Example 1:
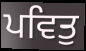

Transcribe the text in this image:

ਪਵਿਤੁ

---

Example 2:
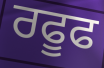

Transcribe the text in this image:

ਰਫੂਫ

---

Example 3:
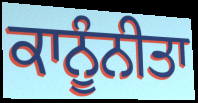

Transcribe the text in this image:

ਕਾਨੂੰਨੀਤਾ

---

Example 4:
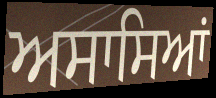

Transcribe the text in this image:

ਅਸਾਸਿਆਂ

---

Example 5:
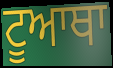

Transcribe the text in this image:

ਟੂਆਥਾ